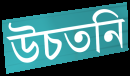
উচতনি